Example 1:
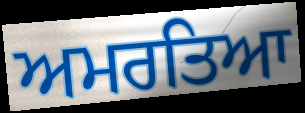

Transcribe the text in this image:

ਅਮਰਤਿਆ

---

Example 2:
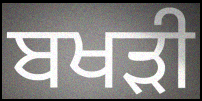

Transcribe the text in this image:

ਬਖੜੀ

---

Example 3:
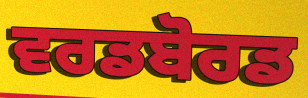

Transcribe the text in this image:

ਵਰਡਬੋਰਡ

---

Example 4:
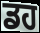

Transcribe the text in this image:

ਡਹ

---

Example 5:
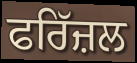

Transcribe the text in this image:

ਫਰਿੱਜ਼ਲ